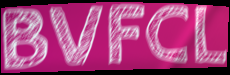
BVFCL